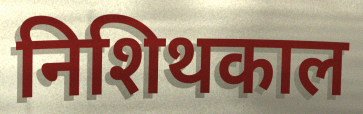
निशिथकाल